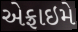
એફ્રાઇમે